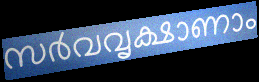
സർവവൃക്ഷാണാം